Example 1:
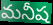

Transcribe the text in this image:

మనీష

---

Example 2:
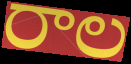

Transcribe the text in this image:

రాల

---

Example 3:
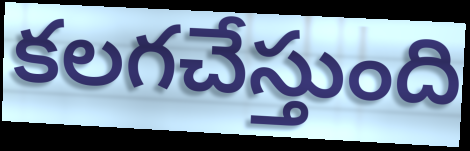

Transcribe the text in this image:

కలగచేస్తుంది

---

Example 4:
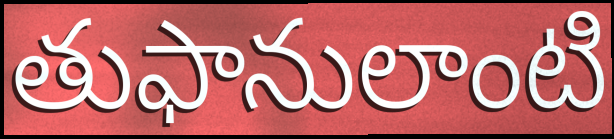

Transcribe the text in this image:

తుఫానులాంటి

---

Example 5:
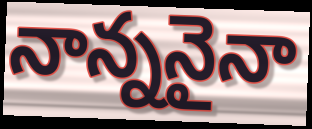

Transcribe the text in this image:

నాన్ననైనా